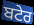
ਬਟੇਰ